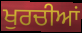
ਖੁਰਚੀਆਂ